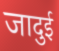
जादुई